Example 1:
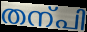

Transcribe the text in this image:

തന്പി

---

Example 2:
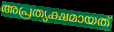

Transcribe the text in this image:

അപ്രത്യക്ഷമായത്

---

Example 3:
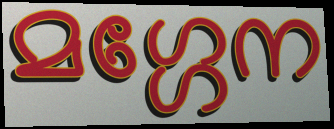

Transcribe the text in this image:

മഗ്ഗേന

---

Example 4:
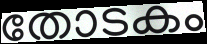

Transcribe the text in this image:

തോടകം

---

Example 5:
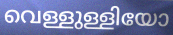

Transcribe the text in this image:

വെള്ളുള്ളിയോ